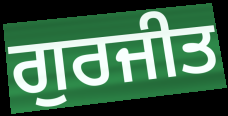
ਗੁਰਜੀਤ